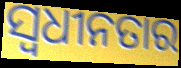
ସ୍ବଧୀନତାର